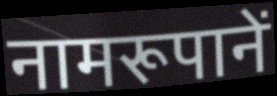
नामरूपानें